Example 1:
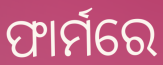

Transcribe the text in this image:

ଫାର୍ମରେ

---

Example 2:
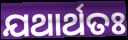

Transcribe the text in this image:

ଯଥାର୍ଥତଃ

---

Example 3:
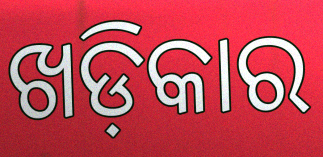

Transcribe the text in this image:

ଖଡ଼ିକାର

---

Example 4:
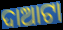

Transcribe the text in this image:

ଦାଆଟା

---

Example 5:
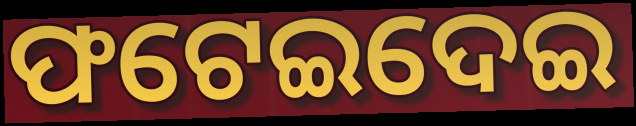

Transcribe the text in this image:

ଫଟେଇଦେଇ